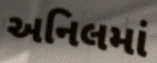
અનિલમાં